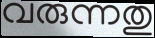
വരുന്നതു